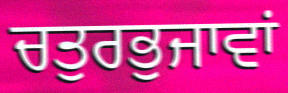
ਚਤੁਰਭੁਜਾਵਾਂ